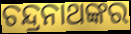
ଚନ୍ଦ୍ରନାଥଙ୍କର